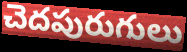
చెదపురుగులు